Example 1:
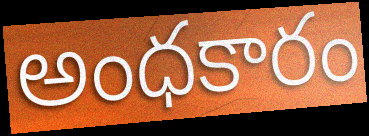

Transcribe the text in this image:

అంధకారం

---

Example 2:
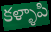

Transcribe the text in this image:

కళ్ళాపి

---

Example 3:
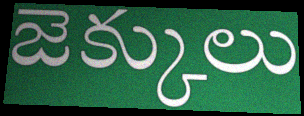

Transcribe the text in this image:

జెక్కులు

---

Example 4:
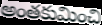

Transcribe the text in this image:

అంతకుమించి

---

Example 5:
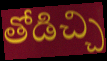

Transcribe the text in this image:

తోడిచ్చి